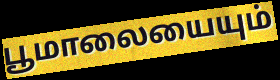
பூமாலையையும்